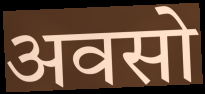
अवसो